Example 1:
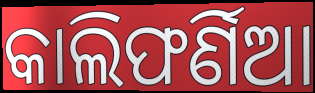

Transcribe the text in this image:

କାଲିଫର୍ଣିଆ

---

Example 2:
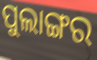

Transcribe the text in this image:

ପୁଲାଙ୍ଗର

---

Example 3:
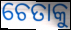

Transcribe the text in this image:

ଚେତାକୁ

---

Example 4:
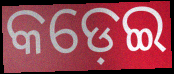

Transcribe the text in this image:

କଡ଼େଇ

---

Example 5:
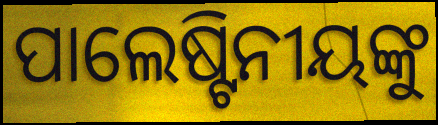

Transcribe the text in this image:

ପାଲେଷ୍ଟିନୀୟଙ୍କୁ